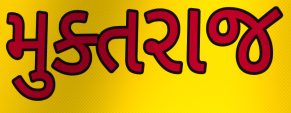
મુક્તરાજ